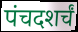
पंचदशर्चं